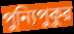
পুন্যিপুকুর